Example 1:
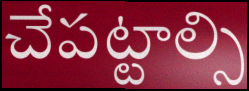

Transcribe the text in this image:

చేపట్టాల్సి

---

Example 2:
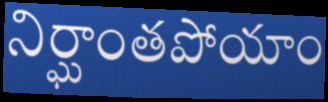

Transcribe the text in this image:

నిర్ఘాంతపోయాం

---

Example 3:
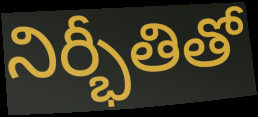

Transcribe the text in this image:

నిర్భీతితో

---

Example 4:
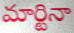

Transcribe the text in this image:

మార్టినా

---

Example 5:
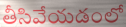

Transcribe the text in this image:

తీసివేయడంలో